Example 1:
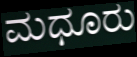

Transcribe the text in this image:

ಮಧೂರು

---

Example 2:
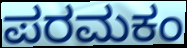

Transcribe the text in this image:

ಪರಮಕಂ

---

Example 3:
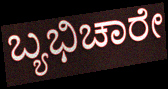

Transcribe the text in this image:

ಬ್ಯಭಿಚಾರೇ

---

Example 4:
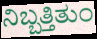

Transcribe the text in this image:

ನಿಬ್ಬತ್ತಿತುಂ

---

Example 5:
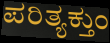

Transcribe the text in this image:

ಪರಿತ್ಯಕ್ತುಂ